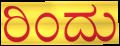
ರಿಂದು